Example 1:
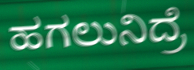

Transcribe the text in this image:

ಹಗಲುನಿದ್ರೆ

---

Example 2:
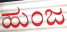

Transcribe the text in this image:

ಹುಂಜ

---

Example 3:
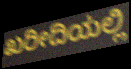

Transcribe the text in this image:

ಖರೀದಿಯಲ್ಲಿ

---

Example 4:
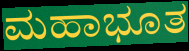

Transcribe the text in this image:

ಮಹಾಭೂತ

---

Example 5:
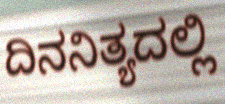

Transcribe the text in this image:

ದಿನನಿತ್ಯದಲ್ಲಿ